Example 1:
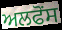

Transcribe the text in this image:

ਅਲਫੋਂਸ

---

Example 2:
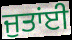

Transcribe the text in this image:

ਜੁਤਾਂਈ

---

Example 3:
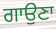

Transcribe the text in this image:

ਗਾਉਣਾ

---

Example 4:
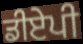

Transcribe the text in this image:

ਡੀਏਪੀ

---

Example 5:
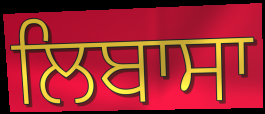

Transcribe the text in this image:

ਲਿਬਾਸਾ